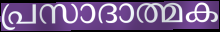
പ്രസാദാത്മക